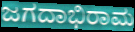
ಜಗದಾಭಿರಾಮ